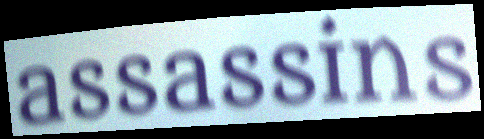
assassins